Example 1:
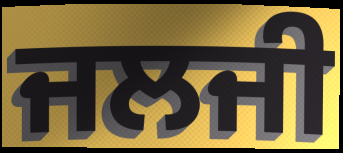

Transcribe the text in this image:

ਜਲਜੀ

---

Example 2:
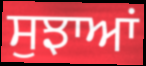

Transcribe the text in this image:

ਸੁਝਾਆਂ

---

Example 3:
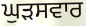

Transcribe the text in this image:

ਘੁੜਸਵਾਰ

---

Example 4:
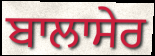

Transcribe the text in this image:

ਬਾਲਾਸੇਰ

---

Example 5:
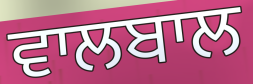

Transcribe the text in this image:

ਵਾਲਬਾਲ